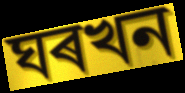
ঘৰখন